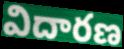
విదారణ